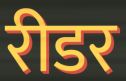
रीडर